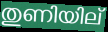
തുണിയില്